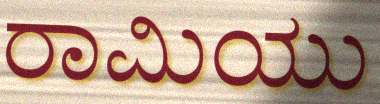
ರಾಮಿಯು